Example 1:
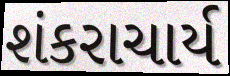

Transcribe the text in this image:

શંકરાચાર્ય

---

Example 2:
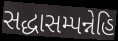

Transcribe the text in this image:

સદ્ધાસમ્પન્નેહિ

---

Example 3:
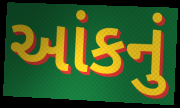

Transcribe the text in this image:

આંકનું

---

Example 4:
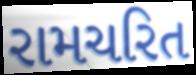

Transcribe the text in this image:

રામચરિત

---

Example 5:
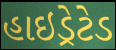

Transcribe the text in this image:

હાઇડ્રેટેડ